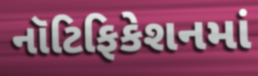
નૉટિફિકેશનમાં